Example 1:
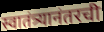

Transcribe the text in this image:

स्वातंत्र्यानंतरची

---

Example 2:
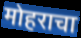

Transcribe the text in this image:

मोहराचा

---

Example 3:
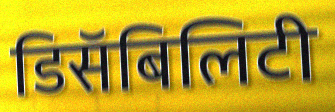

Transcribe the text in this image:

डिसॅबिलिटी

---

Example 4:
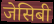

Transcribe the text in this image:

जेसिबी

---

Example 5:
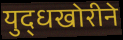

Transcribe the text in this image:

युद्धखोरीने